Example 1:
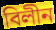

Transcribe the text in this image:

বিলীন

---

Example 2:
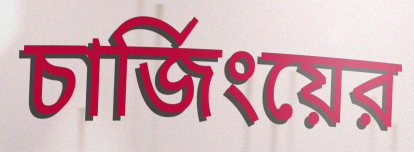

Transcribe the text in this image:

চার্জিংয়ের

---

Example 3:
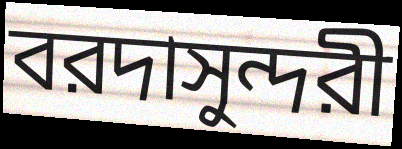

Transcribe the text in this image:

বরদাসুন্দরী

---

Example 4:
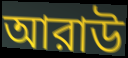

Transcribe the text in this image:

আরাউ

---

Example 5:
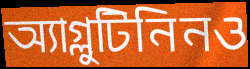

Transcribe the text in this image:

অ্যাগ্লুটিনিনও